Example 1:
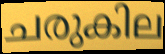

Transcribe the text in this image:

ചരുകില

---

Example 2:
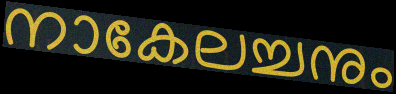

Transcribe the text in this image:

നാകേലച്ചനും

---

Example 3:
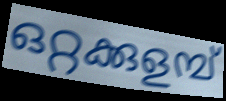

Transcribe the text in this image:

ഒറ്റക്കുളമ്പ്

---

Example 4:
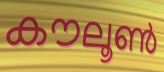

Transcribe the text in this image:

കൗലൂൺ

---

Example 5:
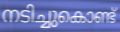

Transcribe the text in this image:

നടിച്ചുകൊണ്ട്